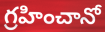
గ్రహించానో